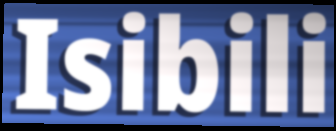
Isibili